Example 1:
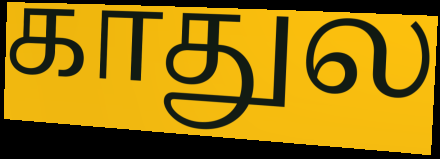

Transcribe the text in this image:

காதுல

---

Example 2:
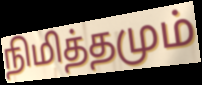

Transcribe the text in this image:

நிமித்தமும்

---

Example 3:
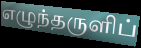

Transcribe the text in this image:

எழுந்தருளிப்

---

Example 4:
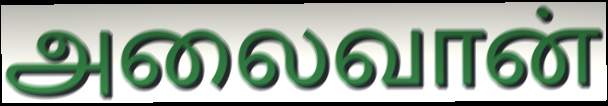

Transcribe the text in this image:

அலைவான்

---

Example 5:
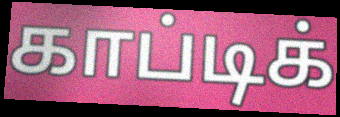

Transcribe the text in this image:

காப்டிக்